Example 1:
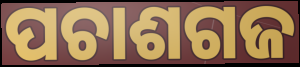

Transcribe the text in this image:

ପଚାଶଗଜ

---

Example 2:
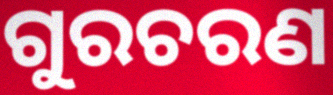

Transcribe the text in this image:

ଗୁରଚରଣ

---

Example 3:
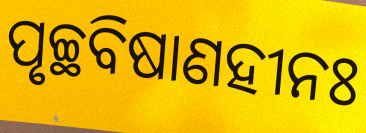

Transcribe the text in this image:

ପୃଚ୍ଛବିଷାଣହୀନଃ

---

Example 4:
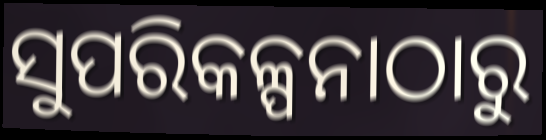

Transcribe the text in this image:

ସୁପରିକଳ୍ପନାଠାରୁ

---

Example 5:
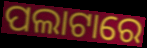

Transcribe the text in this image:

ପଲାଟାରେ